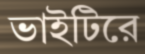
ভাইটিরে